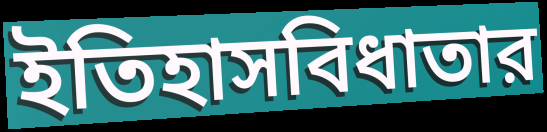
ইতিহাসবিধাতার